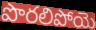
పొరలిపోయె